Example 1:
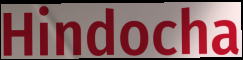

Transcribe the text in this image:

Hindocha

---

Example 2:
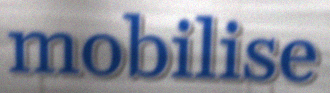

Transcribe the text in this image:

mobilise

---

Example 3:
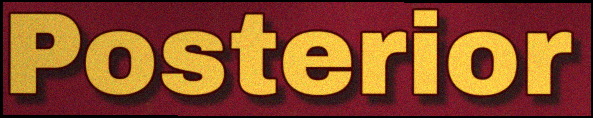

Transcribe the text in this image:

Posterior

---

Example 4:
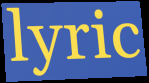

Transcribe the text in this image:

lyric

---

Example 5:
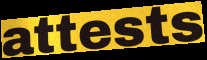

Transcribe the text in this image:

attests